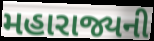
મહારાજ્યની